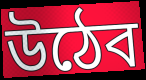
উঠেব